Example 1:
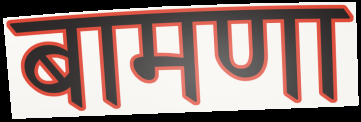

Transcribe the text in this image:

बामणा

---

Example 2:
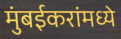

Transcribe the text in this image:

मुंबईकरांमध्ये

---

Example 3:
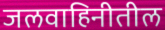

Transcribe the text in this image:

जलवाहिनीतील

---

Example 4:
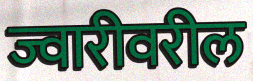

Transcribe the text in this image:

ज्वारीवरील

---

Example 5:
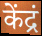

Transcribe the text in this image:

केंद्रं